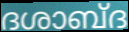
ദശാബ്ദ